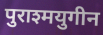
पुराश्मयुगीन